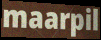
maarpil